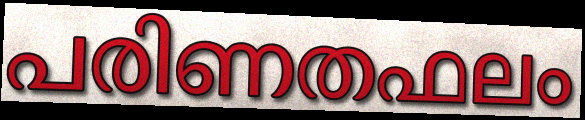
പരിണതഫലം